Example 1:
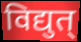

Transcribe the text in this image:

विद्युत्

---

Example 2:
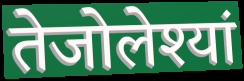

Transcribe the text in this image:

तेजोलेश्यां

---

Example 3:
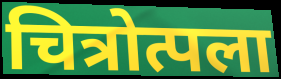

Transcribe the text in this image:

चित्रोत्पला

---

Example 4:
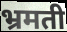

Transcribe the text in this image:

भ्रमती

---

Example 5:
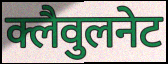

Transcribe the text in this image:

क्लैवुलनेट